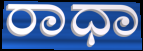
ರಾಧಾ